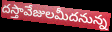
దస్తావేజులమీదనున్న